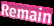
Remain